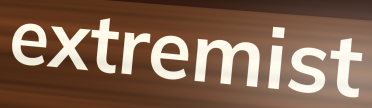
extremist